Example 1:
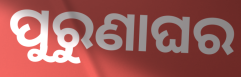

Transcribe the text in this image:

ପୁରୁଣାଘର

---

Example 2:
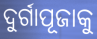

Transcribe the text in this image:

ଦୁର୍ଗାପୂଜାକୁ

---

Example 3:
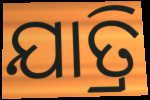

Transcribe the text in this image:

ଯାତ୍ରି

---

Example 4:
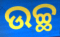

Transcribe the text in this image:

ଉଚ୍ଛ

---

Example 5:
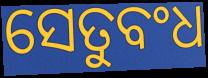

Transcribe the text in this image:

ସେତୁବଂଧ